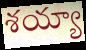
శయ్యా